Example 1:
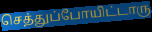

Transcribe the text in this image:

செத்துப்போயிட்டாரு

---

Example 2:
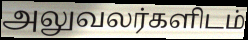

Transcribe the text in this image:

அலுவலர்களிடம்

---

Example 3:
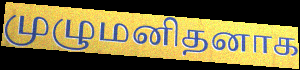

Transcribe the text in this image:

முழுமனிதனாக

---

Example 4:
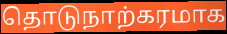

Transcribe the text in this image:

தொடுநாற்கரமாக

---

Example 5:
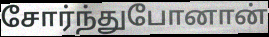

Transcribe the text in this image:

சோர்ந்துபோனான்